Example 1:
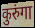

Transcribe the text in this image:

कुरुंगा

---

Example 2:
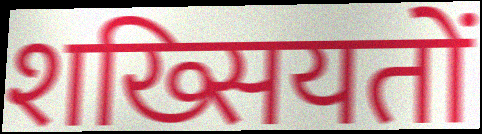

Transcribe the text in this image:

शख्सियतों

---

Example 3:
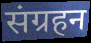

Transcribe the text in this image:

संग्रहन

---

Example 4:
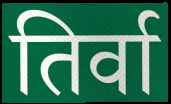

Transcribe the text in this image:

तिर्वा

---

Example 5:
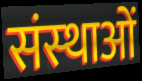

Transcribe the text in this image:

संस्‍थाओं